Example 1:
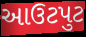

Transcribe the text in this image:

આઉટપુટ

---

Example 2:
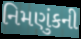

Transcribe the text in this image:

નિમણુંકની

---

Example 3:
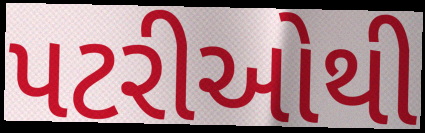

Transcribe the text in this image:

પટરીઓથી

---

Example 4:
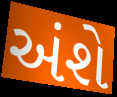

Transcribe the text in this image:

અંશે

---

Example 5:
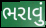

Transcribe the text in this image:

ભરાવું